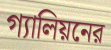
গ্যালিয়নের